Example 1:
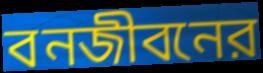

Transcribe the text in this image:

বনজীবনের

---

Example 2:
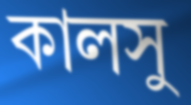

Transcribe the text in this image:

কালসু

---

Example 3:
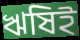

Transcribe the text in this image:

ঋষিই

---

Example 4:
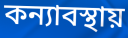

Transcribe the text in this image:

কন্যাবস্থায়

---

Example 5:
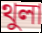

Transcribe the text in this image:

থুলা